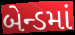
બેન્ડમાં